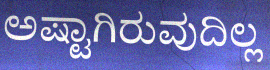
ಅಷ್ಟಾಗಿರುವುದಿಲ್ಲ